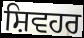
ਸ਼ਿਵਹਰ